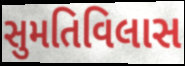
સુમતિવિલાસ